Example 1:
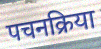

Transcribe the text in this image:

पचनक्रिया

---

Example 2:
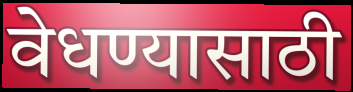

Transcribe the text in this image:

वेधण्यासाठी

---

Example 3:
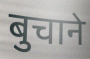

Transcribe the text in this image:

बुचाने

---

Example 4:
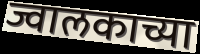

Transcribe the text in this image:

ज्वालकाच्या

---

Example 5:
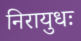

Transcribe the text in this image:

निरायुधः